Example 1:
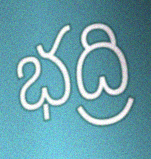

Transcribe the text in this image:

భద్రి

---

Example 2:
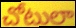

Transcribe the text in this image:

చోటులా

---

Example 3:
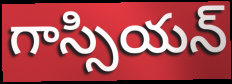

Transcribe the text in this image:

గాస్సియన్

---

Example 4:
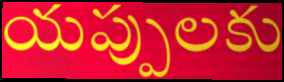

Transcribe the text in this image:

యప్పులకు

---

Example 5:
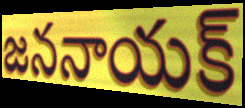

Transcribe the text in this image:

జననాయక్